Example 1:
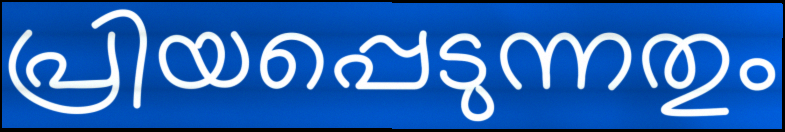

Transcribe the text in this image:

പ്രിയപ്പെടുന്നതും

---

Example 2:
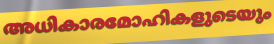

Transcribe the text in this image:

അധികാരമോഹികളുടെയും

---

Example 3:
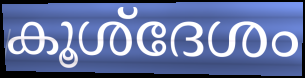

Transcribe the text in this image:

കൂശ്ദേശം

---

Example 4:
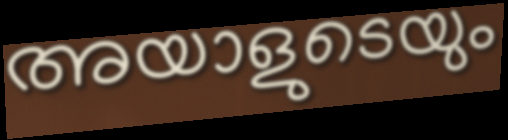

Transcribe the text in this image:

അയാളുടെയും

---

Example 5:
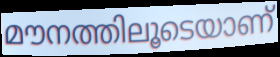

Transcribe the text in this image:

മൗനത്തിലൂടെയാണ്